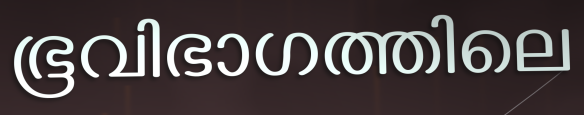
ഭൂവിഭാഗത്തിലെ